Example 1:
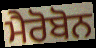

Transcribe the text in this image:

ਮੈਰੋਬੋਨ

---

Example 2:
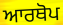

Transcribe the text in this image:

ਆਰਥੋਪ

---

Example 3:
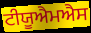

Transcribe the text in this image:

ਟੀਯੂਐਮਐਸ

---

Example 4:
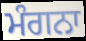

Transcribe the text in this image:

ਮੰਗਨਾ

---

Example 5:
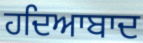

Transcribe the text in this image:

ਹਦਿਆਬਾਦ